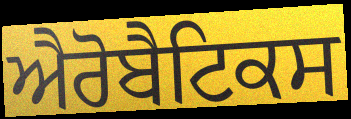
ਐਰੋਬੈਟਿਕਸ